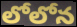
లోలోన